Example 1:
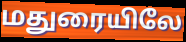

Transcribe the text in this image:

மதுரையிலே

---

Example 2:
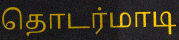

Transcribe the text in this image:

தொடர்மாடி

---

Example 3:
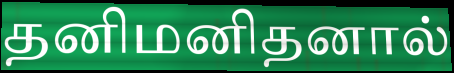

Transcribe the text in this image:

தனிமனிதனால்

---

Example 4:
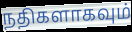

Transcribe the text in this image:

நதிகளாகவும்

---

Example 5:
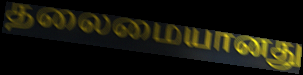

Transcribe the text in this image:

தலைமையானது